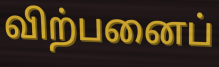
விற்பனைப்